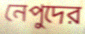
নেপুদের